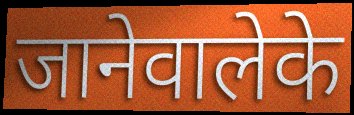
जानेवालेके